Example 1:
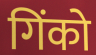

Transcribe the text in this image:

गिंको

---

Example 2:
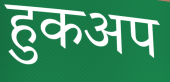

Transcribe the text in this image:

हुकअप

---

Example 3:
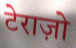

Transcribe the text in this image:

टेराज़ो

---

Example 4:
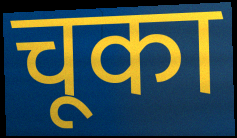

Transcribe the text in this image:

चूका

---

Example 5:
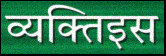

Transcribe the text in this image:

व्यक्तिइस